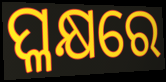
ପ୍ଳକ୍ଷରେ